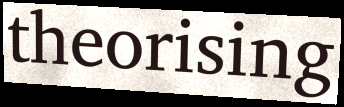
theorising